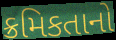
ક્રમિકતાનો